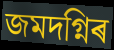
জমদগ্নিৰ